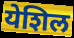
येशिल